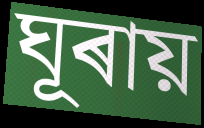
ঘূৰায়